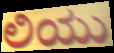
ಲಿಯು